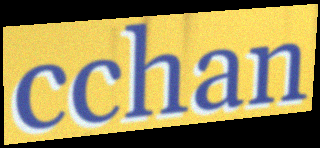
cchan